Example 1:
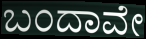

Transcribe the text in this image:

ಬಂದಾವೇ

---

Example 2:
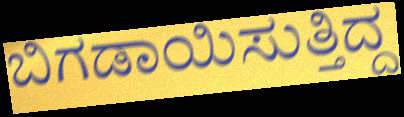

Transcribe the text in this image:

ಬಿಗಡಾಯಿಸುತ್ತಿದ್ದ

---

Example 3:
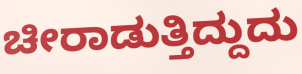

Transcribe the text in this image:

ಚೀರಾಡುತ್ತಿದ್ದುದು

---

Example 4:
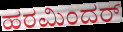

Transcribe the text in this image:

ಹರಮಿಂದರ್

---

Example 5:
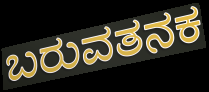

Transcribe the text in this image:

ಬರುವತನಕ